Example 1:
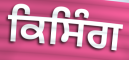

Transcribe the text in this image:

ਕਿਸਿੰਗ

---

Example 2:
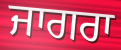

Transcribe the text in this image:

ਜਾਗਰਾ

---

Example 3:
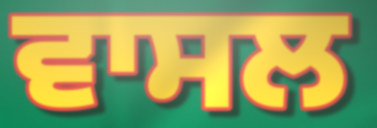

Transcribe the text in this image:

ਵਾਸਲ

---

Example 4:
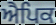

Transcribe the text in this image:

ਐਪਿਕ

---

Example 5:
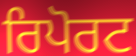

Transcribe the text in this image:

ਰਿਪੋਰਟ